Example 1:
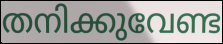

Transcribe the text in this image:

തനിക്കുവേണ്ട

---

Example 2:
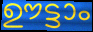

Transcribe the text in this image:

ഊട്ടാം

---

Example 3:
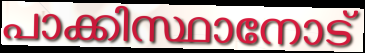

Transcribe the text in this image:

പാക്കിസ്ഥാനോട്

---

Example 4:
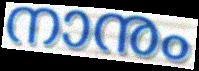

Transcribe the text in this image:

നാനും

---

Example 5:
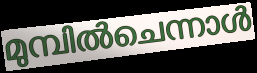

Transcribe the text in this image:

മുമ്പിൽചെന്നാൾ